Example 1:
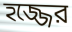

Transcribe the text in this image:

হজ্জের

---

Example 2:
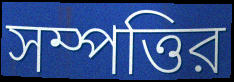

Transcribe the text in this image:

সম্পত্তির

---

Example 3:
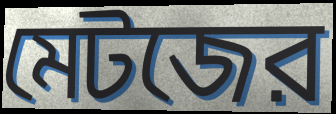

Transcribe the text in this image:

মেটজের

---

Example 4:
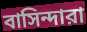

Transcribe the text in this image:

বাসিন্দারা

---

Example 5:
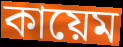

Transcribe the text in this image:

কায়েম